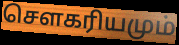
சௌகரியமும்